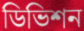
ডিভিশন